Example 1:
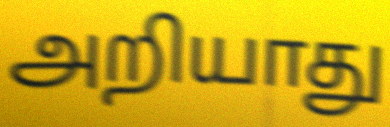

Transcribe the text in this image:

அறியாது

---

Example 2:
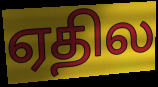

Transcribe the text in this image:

ஏதில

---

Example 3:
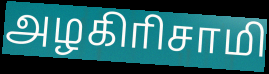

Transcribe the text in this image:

அழகிரிசாமி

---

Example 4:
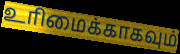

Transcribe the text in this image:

உரிமைக்காகவும்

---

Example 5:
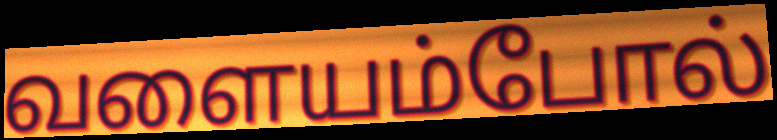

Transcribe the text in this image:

வளையம்போல்